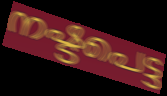
നഷ്ടപെട്ട